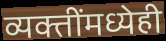
व्यक्तींमध्येही